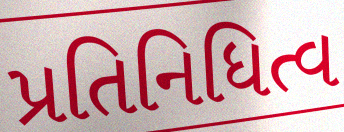
પ્રતિનિધિત્વ